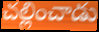
చల్లించాడు